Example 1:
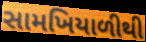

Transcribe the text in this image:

સામખિયાળીથી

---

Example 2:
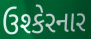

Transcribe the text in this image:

ઉશ્કેરનાર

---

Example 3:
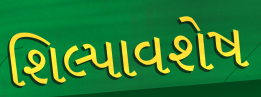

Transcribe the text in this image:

શિલ્પાવશેષ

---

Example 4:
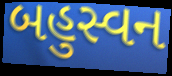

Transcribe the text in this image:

બહુસ્વન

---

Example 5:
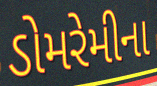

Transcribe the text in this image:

ડોમરેમીના